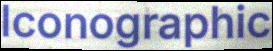
Iconographic